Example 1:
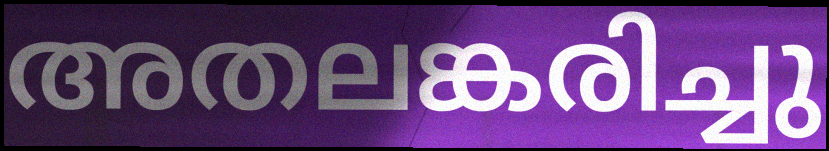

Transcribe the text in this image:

അതലങ്കരിച്ചു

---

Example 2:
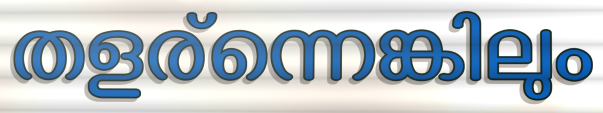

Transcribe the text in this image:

തളര്ന്നെങ്കിലും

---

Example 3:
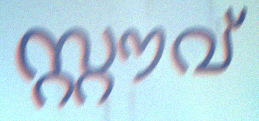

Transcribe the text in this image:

സ്റ്റൗവ്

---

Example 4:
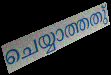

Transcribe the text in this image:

ചെയ്യാത്തതു്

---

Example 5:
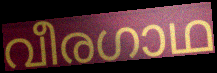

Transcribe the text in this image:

വീരഗാഥ